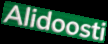
Alidoosti